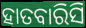
ହାତବାରିସି